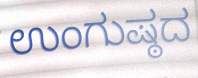
ಉಂಗುಷ್ಠದ